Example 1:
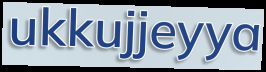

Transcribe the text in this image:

ukkujjeyya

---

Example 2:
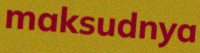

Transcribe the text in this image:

maksudnya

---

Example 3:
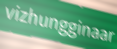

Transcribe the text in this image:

vizhungginaar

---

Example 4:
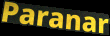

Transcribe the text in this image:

Paranar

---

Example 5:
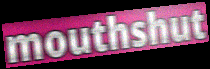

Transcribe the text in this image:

mouthshut